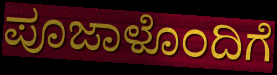
ಪೂಜಾಳೊಂದಿಗೆ